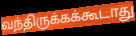
வந்திருக்கக்கூடாது